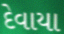
દેવાયા